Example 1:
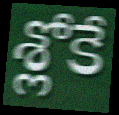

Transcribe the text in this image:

శ్లోకే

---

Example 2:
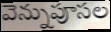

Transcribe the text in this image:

వెన్నుపూసల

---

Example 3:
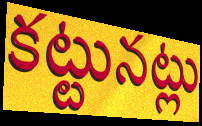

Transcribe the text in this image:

కట్టునట్లు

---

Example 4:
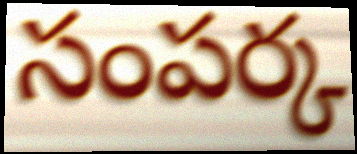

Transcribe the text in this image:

సంపర్క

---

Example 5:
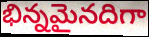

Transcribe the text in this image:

భిన్నమైనదిగా